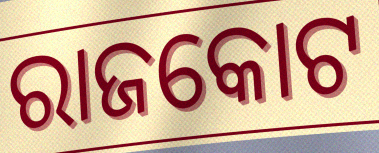
ରାଜକୋଟ